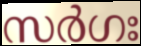
സർഗഃ